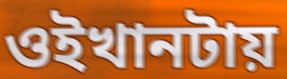
ওইখানটায়